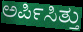
ಅರ್ಪಿಸಿತ್ತು